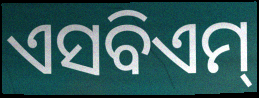
ଏସବିଏମ୍